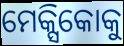
ମେକ୍ସିକୋକୁ